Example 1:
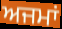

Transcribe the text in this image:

ਅਜਮਾਂ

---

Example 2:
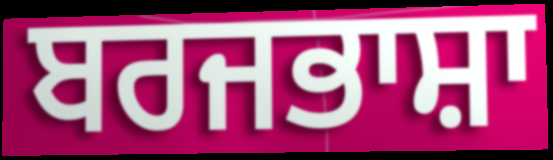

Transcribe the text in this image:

ਬਰਜਭਾਸ਼ਾ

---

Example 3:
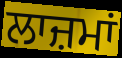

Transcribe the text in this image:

ਲਾਜ਼ਮਾਂ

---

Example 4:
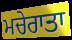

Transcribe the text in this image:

ਮਚੇਰਾਤਾ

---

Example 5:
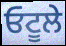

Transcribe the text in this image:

ਓਟੂਲੇ